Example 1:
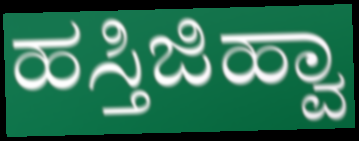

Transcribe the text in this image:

ಹಸ್ತಿಜಿಹ್ವಾ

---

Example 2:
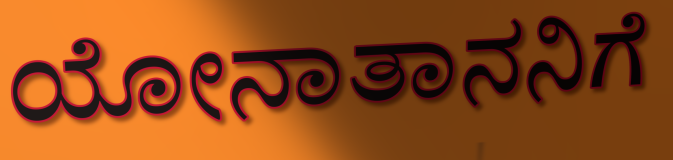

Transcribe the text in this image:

ಯೋನಾತಾನನಿಗೆ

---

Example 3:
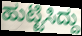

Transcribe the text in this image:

ಹುಟ್ಟಿಸಿದ್ದು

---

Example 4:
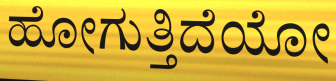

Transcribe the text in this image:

ಹೋಗುತ್ತಿದೆಯೋ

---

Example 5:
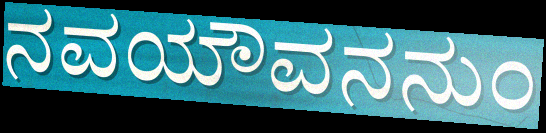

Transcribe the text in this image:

ನವಯೌವನನುಂ